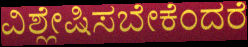
ವಿಶ್ಲೇಷಿಸಬೇಕೆಂದರೆ